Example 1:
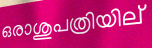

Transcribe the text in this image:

ഒരാശുപത്രിയില്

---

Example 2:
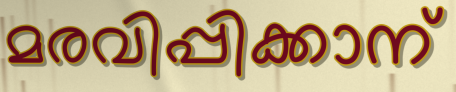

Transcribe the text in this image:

മരവിപ്പിക്കാന്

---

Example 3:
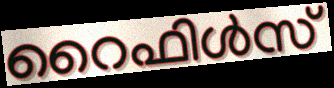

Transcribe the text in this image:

റൈഫിൾസ്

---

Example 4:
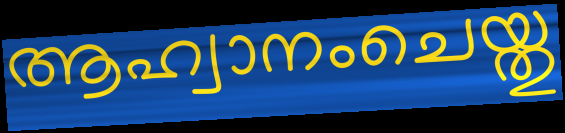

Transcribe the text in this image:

ആഹ്വാനംചെയ്തു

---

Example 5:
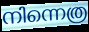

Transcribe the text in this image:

നിന്നെത്ര